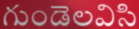
గుండెలవిసి